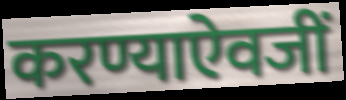
करण्याऐवजीं